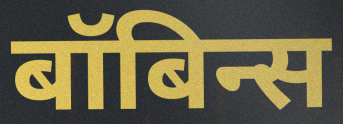
बॉबिन्स